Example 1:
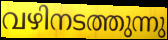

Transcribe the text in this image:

വഴിനടത്തുന്നു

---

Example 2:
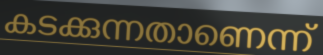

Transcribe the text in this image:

കടക്കുന്നതാണെന്ന്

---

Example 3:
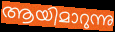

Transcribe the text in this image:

ആയിമാറുന്നു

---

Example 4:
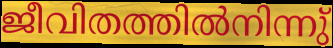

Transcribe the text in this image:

ജീവിതത്തിൽനിന്നു്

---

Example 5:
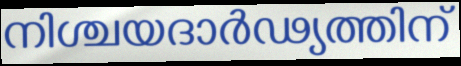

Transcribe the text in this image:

നിശ്ചയദാർഢ്യത്തിന്